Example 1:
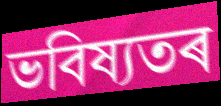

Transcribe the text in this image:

ভবিষ্যতৰ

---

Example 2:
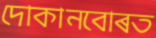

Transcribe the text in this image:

দোকানবোৰত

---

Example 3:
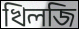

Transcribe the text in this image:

খিলজি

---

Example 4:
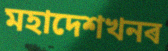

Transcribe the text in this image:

মহাদেশখনৰ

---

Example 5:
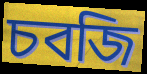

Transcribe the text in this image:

চবজি